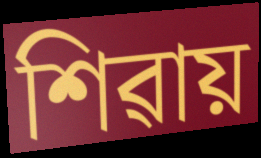
শিৱায়